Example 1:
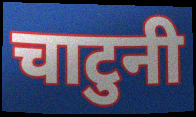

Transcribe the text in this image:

चाटुनी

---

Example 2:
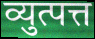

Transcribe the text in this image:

व्युत्पत्त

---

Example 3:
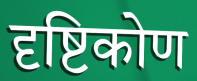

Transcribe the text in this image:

दृष्टिकोण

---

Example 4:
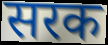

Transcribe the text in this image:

सरक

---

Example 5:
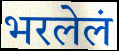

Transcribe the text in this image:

भरलेलं